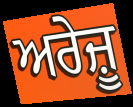
ਅਰੇਜ਼ੂ